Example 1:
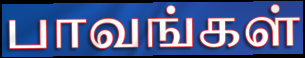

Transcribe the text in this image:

பாவங்கள்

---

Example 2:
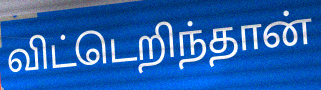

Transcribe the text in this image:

விட்டெறிந்தான்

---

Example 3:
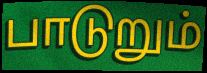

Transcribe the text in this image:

பாடுறும்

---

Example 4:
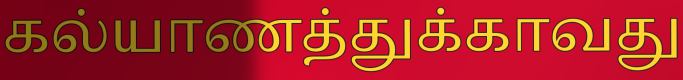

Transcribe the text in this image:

கல்யாணத்துக்காவது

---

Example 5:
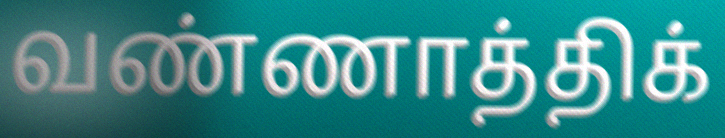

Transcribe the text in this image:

வண்ணாத்திக்